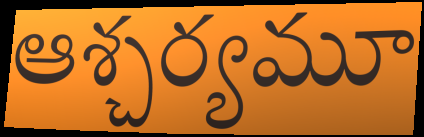
ఆశ్చర్యమూ